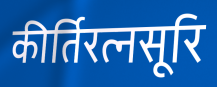
कीर्तिरत्नसूरि